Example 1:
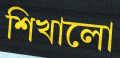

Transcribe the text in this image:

শিখালো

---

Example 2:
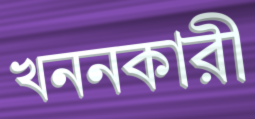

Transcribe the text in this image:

খননকারী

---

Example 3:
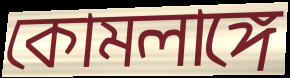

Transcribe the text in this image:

কোমলাঙ্গে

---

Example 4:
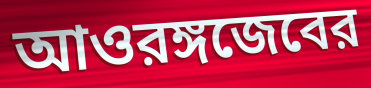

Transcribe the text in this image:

আওরঙ্গজেবের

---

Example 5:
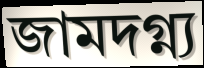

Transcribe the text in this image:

জামদগ্ন্য